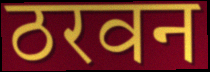
ठरवन